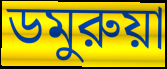
ডমুরুয়া